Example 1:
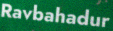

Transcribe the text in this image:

Ravbahadur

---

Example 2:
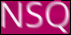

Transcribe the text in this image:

NSQ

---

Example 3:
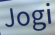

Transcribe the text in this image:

Jogi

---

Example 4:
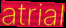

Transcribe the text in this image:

atrial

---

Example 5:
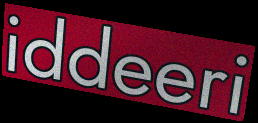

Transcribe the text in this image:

iddeeri